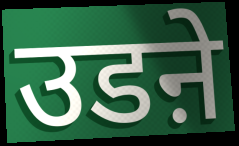
उडऩे